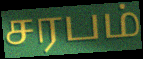
சரபம்